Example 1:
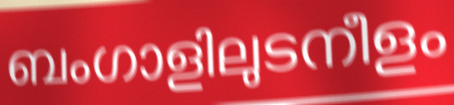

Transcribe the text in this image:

ബംഗാളിലുടനീളം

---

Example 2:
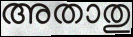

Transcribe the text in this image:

അതാതു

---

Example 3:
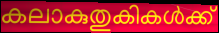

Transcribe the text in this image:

കലാകുതുകികൾക്ക്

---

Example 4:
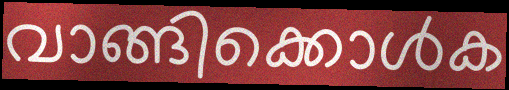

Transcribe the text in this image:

വാങ്ങിക്കൊൾക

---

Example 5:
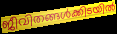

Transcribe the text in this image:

ജീവിതങ്ങൾക്കിടയിൽ